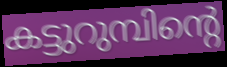
കട്ടുറുമ്പിന്റെ